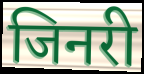
जिनरी